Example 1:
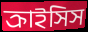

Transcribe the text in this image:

ক্রাইসিস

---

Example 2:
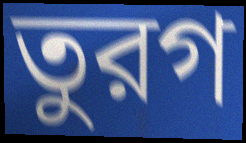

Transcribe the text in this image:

তুরগ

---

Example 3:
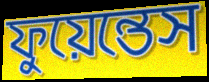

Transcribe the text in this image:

ফুয়েন্তেস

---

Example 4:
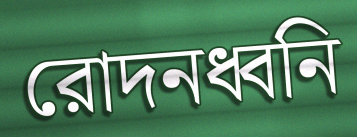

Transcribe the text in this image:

রোদনধ্বনি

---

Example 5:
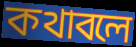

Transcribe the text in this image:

কথাবলে